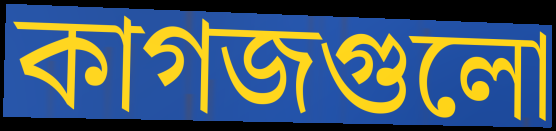
কাগজগুলো